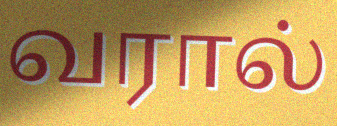
வரால்